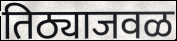
तिठ्याजवळ